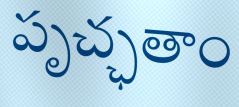
పృచ్ఛతాం